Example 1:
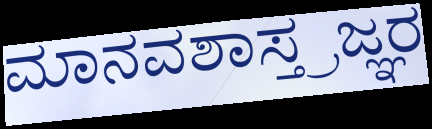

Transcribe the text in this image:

ಮಾನವಶಾಸ್ತ್ರಜ್ಞರ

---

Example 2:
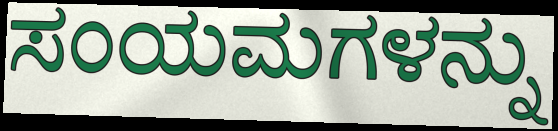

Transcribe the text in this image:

ಸಂಯಮಗಳನ್ನು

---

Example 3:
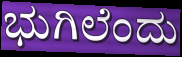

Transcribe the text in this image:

ಭುಗಿಲೆಂದು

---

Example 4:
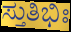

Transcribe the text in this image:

ಸ್ತುತಿಭಿಃ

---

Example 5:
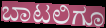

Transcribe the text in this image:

ಬಾಟಲಿಗೂ